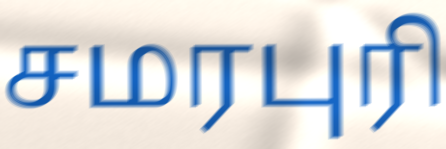
சமரபுரி